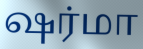
ஷர்மா